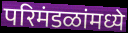
परिमंडळांमध्ये